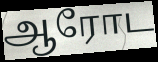
ஆரோட